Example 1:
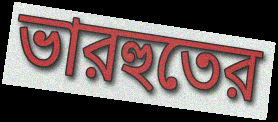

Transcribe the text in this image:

ভারহুতের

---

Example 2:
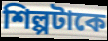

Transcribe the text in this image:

শিল্পটাকে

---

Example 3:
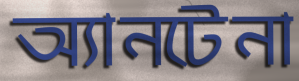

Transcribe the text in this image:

অ্যানটেনা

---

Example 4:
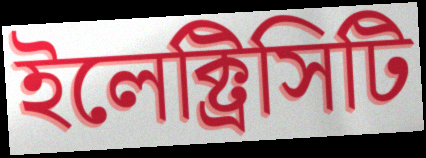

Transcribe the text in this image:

ইলেক্ট্রিসিটি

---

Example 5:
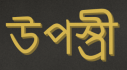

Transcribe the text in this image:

উপস্ত্রী